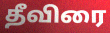
தீவிரை